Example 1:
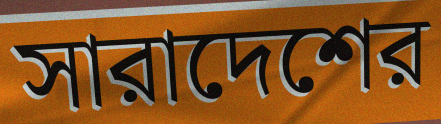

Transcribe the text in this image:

সারাদেশের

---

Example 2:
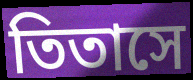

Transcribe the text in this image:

তিতাসে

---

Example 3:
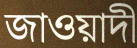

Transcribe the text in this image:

জাওয়াদী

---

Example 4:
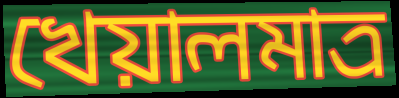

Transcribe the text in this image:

খেয়ালমাত্র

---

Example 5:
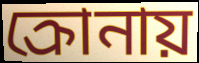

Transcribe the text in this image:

ক্রোনায়